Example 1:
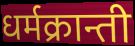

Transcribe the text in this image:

धर्मक्रान्ती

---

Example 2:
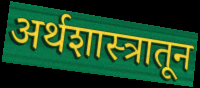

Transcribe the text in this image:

अर्थशास्त्रातून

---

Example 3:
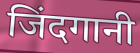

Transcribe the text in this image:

जिंदगानी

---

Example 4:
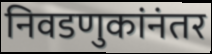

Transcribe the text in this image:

निवडणुकांनंतर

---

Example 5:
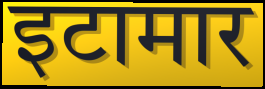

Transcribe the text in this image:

इटामार